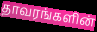
தாவரங்களின்